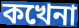
কখেনা